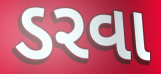
ડરવા